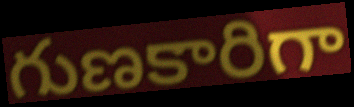
గుణకారిగా